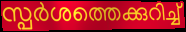
സ്പർശത്തെക്കുറിച്ച്